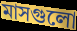
মাসগুলো